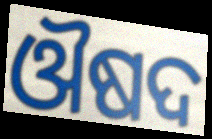
ଔଷଦ